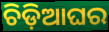
ଚିଡ଼ିଆଘର